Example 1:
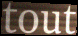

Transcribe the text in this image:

tout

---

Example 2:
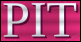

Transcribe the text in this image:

PIT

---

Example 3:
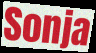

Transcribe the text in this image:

Sonja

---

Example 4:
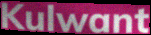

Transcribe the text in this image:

Kulwant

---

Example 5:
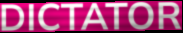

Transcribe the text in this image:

DICTATOR